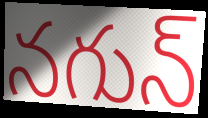
నగున్